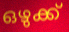
ഒഴുക്ക്